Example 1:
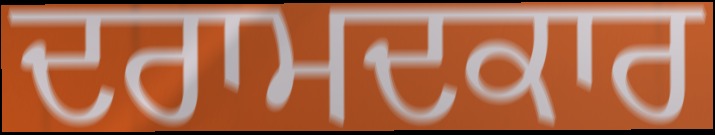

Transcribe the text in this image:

ਦਰਾਮਦਕਾਰ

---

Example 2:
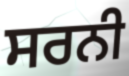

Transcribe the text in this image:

ਸਰਨੀ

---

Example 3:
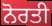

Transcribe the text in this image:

ਨੋਰਤੀ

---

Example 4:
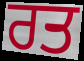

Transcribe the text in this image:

ਰਤ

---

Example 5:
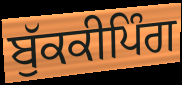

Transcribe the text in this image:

ਬੁੱਕਕੀਪਿੰਗ